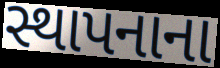
સ્થાપનાના